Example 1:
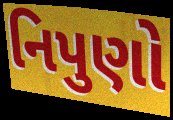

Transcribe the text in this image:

નિપુણો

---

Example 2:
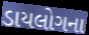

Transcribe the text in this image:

ડાયલોગના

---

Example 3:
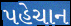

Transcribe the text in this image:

પહેચાન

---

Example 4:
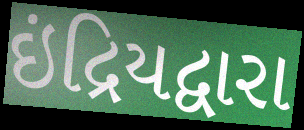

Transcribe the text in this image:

ઇંદ્રિયદ્વારા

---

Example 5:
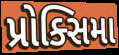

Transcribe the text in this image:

પ્રોક્સિમા